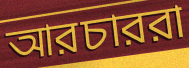
আরচাররা